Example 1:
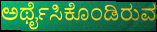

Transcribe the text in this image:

ಅರ್ಥೈಸಿಕೊಂಡಿರುವ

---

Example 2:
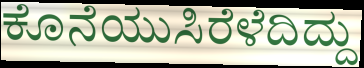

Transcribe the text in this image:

ಕೊನೆಯುಸಿರೆಳೆದಿದ್ದು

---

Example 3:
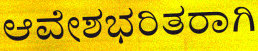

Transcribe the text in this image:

ಆವೇಶಭರಿತರಾಗಿ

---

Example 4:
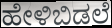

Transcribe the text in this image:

ಹೇಳಿಬಿಡಲೆ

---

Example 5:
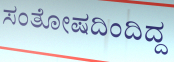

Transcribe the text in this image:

ಸಂತೋಷದಿಂದಿದ್ದ